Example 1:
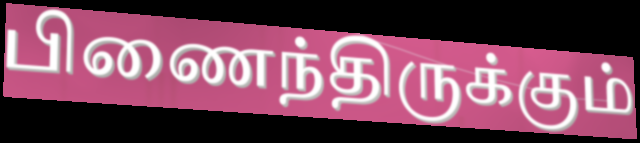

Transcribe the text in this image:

பிணைந்திருக்கும்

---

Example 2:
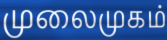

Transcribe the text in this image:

முலைமுகம்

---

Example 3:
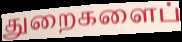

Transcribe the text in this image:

துறைகளைப்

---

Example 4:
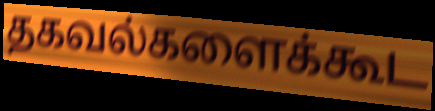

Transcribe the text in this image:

தகவல்களைக்கூட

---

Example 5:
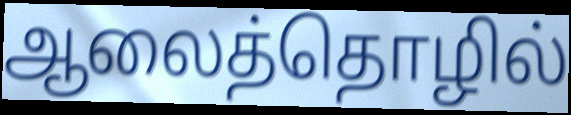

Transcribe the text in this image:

ஆலைத்தொழில்